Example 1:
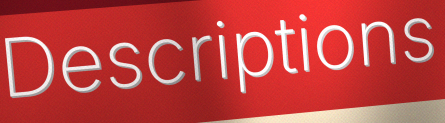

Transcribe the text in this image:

Descriptions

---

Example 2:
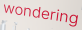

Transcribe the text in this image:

wondering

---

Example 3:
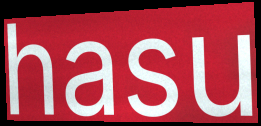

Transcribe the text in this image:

hasu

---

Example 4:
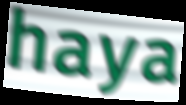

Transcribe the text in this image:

haya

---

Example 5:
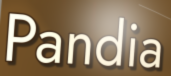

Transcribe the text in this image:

Pandia